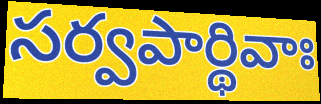
సర్వపార్థివాః